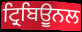
ਟ੍ਰਿਬਿਊੁਨਲ